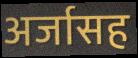
अर्जासह